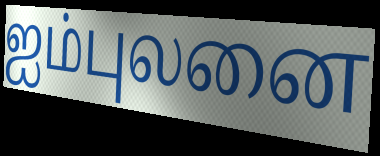
ஐம்புலனை